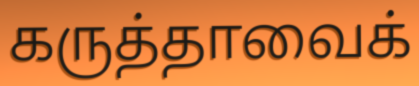
கருத்தாவைக்